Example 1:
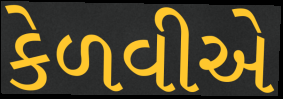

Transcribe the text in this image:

કેળવીએ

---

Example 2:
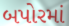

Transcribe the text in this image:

બપોરમાં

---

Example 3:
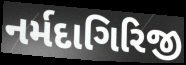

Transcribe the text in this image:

નર્મદાગિરિજી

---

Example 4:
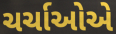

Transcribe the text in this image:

ચર્ચાઓએ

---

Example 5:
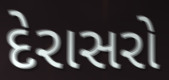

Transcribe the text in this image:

દેરાસરો